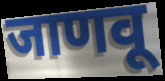
जाणवू